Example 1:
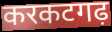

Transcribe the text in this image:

करकटगढ़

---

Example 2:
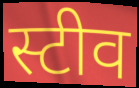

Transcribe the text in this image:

स्टीव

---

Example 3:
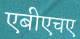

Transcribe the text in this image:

एबीएचए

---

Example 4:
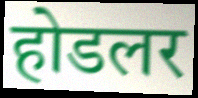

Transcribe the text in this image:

होडलर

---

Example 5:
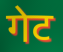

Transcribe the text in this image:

गेट